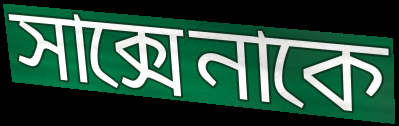
সাক্সেনাকে